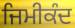
ਜਿਮੀਕੰਦ